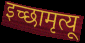
इच्छामृत्यू